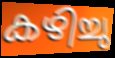
കഴിച്ചു